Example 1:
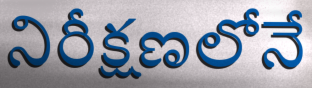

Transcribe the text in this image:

నిరీక్షణలోనే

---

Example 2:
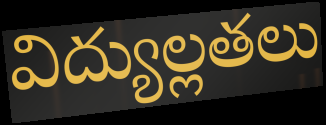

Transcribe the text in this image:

విద్యుల్లతలు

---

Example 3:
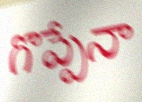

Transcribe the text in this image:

గొప్పేనా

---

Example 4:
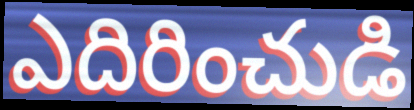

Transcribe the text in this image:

ఎదిరించుడి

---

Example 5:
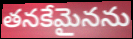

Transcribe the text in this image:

తనకేమైనను